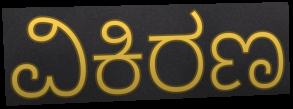
ವಿಕಿರಣ